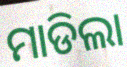
ମାଡିଲା